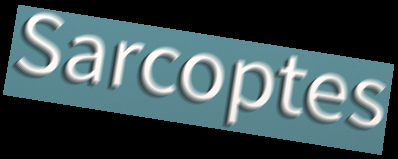
Sarcoptes